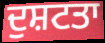
ਦੁਸ਼ਟਤਾ